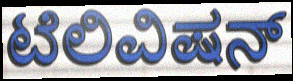
ಟೆಲಿವಿಷನ್